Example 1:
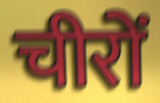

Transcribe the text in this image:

चीरों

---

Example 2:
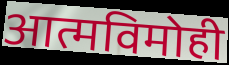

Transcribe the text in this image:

आत्मविमोही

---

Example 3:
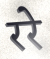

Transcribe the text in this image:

ररे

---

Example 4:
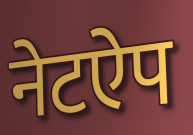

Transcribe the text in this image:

नेटऐप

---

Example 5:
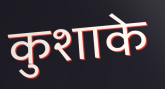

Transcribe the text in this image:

कुशाके